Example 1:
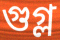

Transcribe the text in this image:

গুগ্ল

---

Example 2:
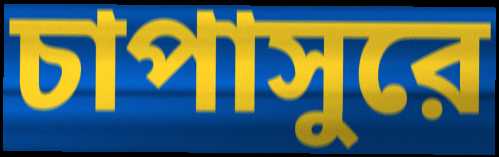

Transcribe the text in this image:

চাপাসুরে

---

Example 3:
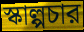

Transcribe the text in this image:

স্কাল্পচার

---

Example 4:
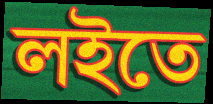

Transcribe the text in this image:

লইতে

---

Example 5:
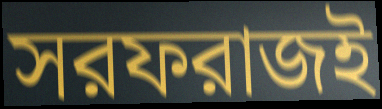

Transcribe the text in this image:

সরফরাজই